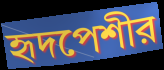
হৃদপেশীর